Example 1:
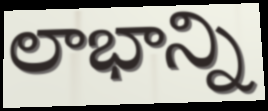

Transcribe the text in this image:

లాభాన్ని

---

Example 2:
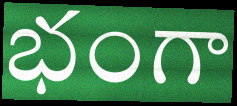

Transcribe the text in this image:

భంగా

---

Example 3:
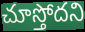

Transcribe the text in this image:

చూస్తోదని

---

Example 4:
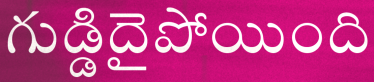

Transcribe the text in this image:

గుడ్డిదైపోయింది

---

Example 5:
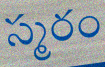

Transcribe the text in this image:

స్మరం